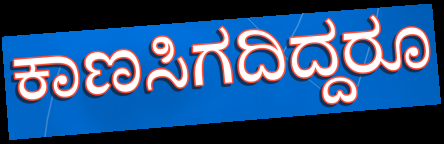
ಕಾಣಸಿಗದಿದ್ದರೂ